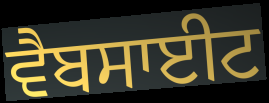
ਵੈਬਸਾਈਟ